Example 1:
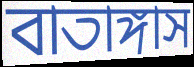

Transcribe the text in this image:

বাতাঙ্গাস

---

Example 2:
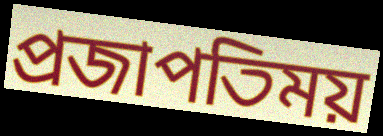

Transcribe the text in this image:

প্রজাপতিময়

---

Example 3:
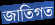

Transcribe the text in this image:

জাতিগত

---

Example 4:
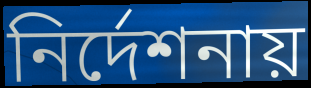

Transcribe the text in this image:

নির্দেশনায়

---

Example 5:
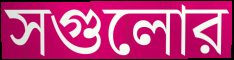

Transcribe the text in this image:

সগুলোর